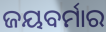
ଜୟବର୍ମାର